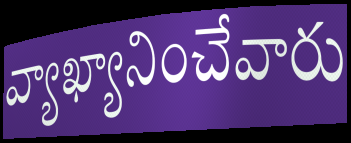
వ్యాఖ్యానించేవారు